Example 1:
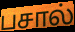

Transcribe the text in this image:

பசால்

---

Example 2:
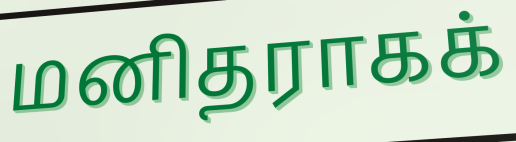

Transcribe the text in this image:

மனிதராகக்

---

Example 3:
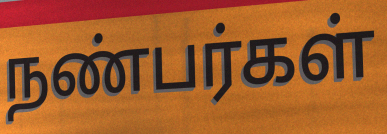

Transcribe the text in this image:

நண்பர்கள்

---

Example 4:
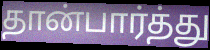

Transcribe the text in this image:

தான்பார்த்து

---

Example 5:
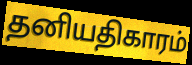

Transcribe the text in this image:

தனியதிகாரம்